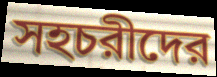
সহচরীদের